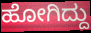
ಹೋಗಿದ್ದು